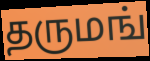
தருமங்